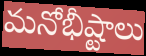
మనోభీష్టాలు